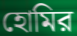
হোমির